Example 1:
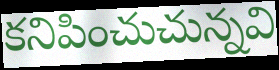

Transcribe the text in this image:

కనిపించుచున్నవి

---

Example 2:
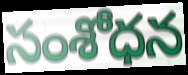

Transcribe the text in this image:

సంశోధన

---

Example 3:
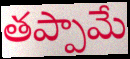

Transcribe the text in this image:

తప్పామే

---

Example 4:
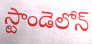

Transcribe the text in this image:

స్టాండెలోన్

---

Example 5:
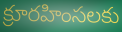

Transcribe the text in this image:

క్రూరహింసలకు